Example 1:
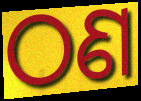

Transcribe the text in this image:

ଠଣ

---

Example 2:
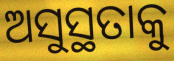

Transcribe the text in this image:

ଅସୁସ୍ଥତାକୁ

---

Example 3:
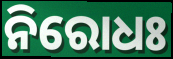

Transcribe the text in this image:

ନିରୋଧଃ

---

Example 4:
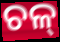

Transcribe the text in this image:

ଚଳ୍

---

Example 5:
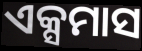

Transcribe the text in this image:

ଏକ୍ସମାସ